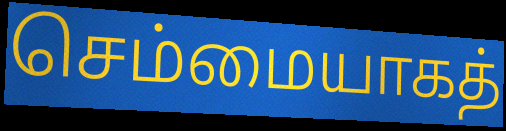
செம்மையாகத்